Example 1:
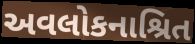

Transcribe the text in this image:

અવલોકનાશ્રિત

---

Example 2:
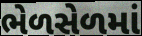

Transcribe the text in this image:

ભેળસેળમાં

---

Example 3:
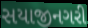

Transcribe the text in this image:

સયાજીનગરી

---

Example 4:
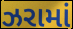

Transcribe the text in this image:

ઝરામાં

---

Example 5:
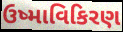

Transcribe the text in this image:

ઉષ્માવિકિરણ